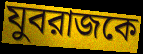
যুবরাজকে